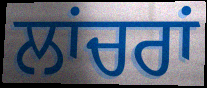
ਲਾਂਚਰਾਂ